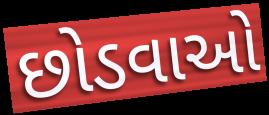
છોડવાઓ